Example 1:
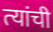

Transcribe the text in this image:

त्‍यांची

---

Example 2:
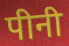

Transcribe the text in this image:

पीनी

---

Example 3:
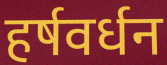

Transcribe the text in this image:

हर्षवर्धन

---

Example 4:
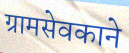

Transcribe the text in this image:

ग्रामसेवकाने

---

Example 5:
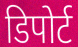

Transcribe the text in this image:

डिपोर्ट